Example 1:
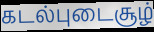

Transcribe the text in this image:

கடல்புடைசூழ்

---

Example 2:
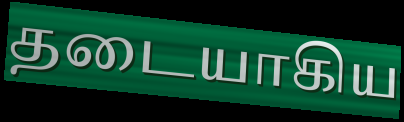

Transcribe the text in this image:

தடையாகிய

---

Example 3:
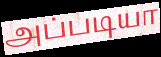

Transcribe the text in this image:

அப்படியா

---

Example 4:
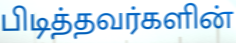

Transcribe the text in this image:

பிடித்தவர்களின்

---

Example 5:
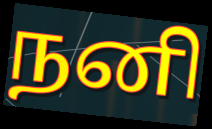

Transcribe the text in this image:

நனி